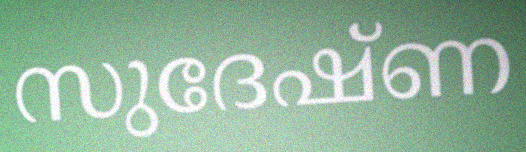
സുദേഷ്ണ